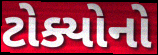
ટોક્યોનો